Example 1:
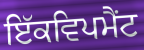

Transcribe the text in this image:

ਇੱਕਵਿਪਮੈਂਟ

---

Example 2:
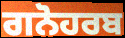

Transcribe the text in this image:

ਗਨੋਹਰਬ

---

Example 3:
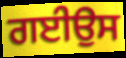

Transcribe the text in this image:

ਗਈਉਸ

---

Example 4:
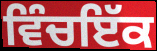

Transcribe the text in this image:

ਵਿੰਚਇੱਕ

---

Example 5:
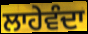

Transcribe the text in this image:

ਲਾਹੇਵੰਦਾ